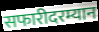
सफारीदरम्यान